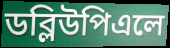
ডব্লিউপিএলে